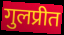
गुलप्रीत